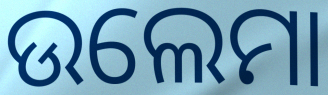
ଉଲେମା